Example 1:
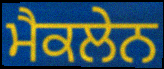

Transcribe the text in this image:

ਮੈਕਲੇਨ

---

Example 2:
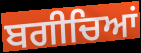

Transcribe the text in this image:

ਬਗੀਚਿਆਂ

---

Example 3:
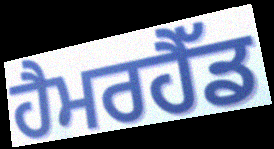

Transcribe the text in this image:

ਹੈਮਰਹੈੱਡ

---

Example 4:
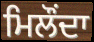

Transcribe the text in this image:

ਮਿਲੌਂਦਾ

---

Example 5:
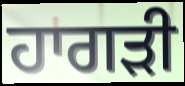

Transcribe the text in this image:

ਹਾਗੜੀ